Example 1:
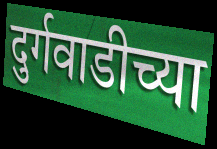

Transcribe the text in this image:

दुर्गवाडीच्या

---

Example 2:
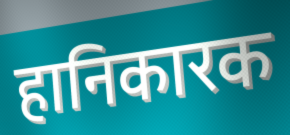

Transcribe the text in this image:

हानिकारक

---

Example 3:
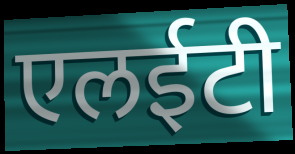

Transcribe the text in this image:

एलईटी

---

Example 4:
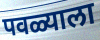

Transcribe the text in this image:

पवळ्याला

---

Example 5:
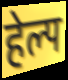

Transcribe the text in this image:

हेल्प